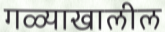
गळ्याखालील